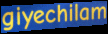
giyechilam